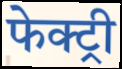
फेक्ट्री